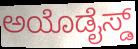
ಅಯೊಡೈಸ್ಡ್